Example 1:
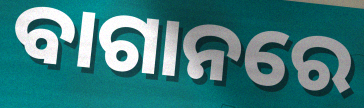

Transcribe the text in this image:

ବାଗାନରେ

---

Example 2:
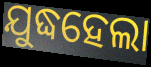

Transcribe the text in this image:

ଯୁଦ୍ଧହେଲା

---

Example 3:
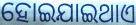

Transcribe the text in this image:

ହୋଇଯାଇଥାଏ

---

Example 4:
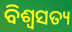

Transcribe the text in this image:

ବିଶ୍ୱସତ୍ୟ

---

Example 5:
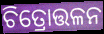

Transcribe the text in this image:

ଚିତ୍ରୋତ୍ତଳନ